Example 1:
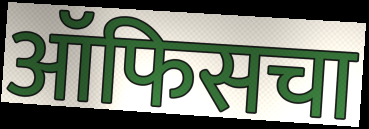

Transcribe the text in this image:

ऑफिसचा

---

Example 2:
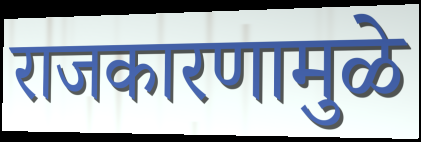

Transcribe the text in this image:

राजकारणामुळे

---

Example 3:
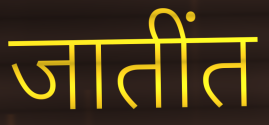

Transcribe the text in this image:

जातींत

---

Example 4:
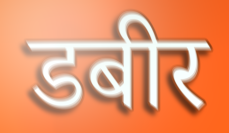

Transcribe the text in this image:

डबीर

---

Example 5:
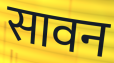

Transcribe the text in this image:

सावन